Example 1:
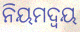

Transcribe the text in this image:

ନିୟମଦ୍ୱୟ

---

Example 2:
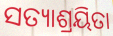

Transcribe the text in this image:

ସତ୍ୟାଶ୍ରୟିତା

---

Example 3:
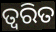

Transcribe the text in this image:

ତ୍ବରିତ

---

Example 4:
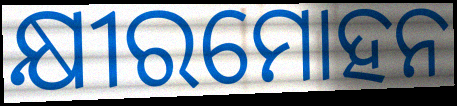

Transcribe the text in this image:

କ୍ଷୀରମୋହନ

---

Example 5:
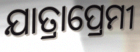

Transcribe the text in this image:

ଯାତ୍ରାପ୍ରେମୀ